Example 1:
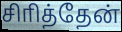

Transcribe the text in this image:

சிரித்தேன்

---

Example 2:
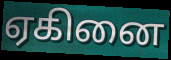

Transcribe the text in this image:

ஏகினை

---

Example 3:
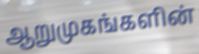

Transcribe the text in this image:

ஆறுமுகங்களின்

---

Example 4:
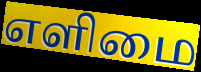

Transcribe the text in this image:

எளிமை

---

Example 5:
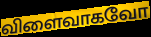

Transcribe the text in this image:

விளைவாகவோ